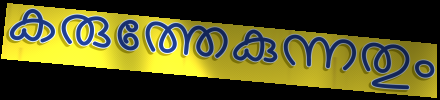
കരുത്തേകുന്നതും